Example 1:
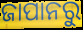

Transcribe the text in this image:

ଜାପାନରୁ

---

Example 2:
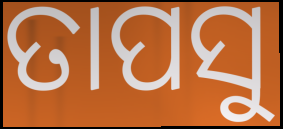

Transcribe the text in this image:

ତାପସୁ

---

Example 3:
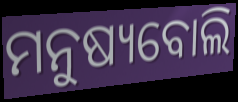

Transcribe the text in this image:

ମନୁଷ୍ୟବୋଲି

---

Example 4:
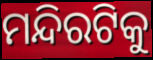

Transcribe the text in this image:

ମନ୍ଦିରଟିକୁ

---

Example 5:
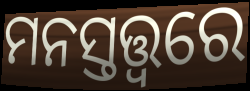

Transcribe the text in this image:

ମନସ୍ତତ୍ତ୍ଵରେ